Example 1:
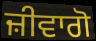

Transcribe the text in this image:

ਜ਼ੀਵਾਗੋ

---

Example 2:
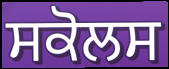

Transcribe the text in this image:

ਸਕੋਲਸ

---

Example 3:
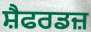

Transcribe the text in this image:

ਸ਼ੈਫਰਡਜ਼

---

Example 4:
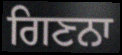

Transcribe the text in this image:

ਗਿਣਨਾ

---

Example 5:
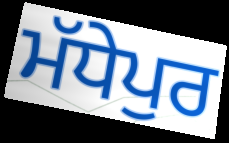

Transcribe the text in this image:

ਮੱਧੇਪੁਰ